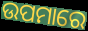
ଉପମାରେ